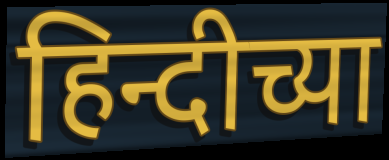
हिन्दीच्या